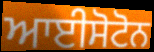
ਆਈਸੋਟੋਨ